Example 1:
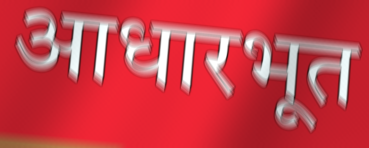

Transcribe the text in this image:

आधारभूत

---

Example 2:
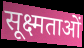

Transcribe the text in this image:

सूक्ष्मताओं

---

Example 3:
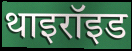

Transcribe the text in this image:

थाइरॉइड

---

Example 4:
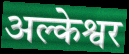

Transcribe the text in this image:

अल्केश्वर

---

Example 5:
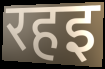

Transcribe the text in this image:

रहइ